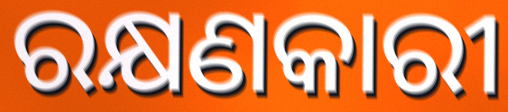
ରକ୍ଷଣକାରୀ